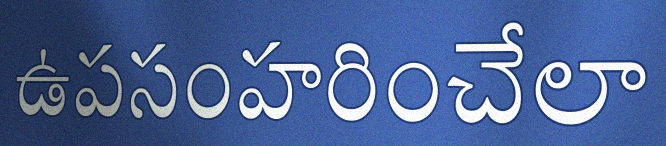
ఉపసంహరించేలా